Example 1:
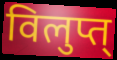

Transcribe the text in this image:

विलुप्त्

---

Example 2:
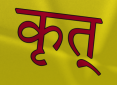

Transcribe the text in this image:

कृत्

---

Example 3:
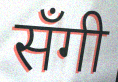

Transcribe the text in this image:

सँगी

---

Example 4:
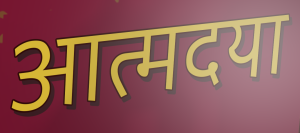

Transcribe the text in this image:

आत्मदया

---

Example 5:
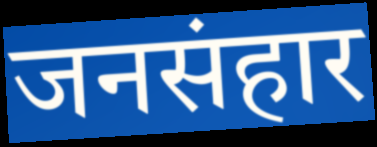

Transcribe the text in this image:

जनसंहार